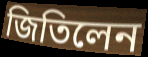
জিতিলেন